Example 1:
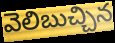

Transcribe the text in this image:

వెలిబుచ్చిన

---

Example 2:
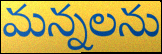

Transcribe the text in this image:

మన్నలను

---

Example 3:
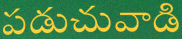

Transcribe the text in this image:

పడుచువాడి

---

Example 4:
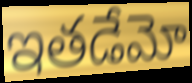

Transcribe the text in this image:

ఇతడేమో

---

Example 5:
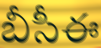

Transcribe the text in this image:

బీసీఈ